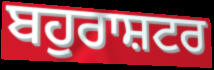
ਬਹੁਰਾਸ਼ਟਰ